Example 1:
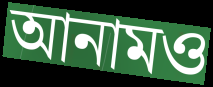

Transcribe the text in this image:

আনামও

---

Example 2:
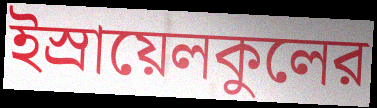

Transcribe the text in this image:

ইস্রায়েলকুলের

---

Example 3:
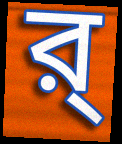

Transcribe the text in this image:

র্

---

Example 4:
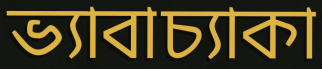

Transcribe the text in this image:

ভ্যাবাচ্যাকা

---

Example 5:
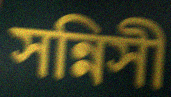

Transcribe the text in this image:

সন্নিসী